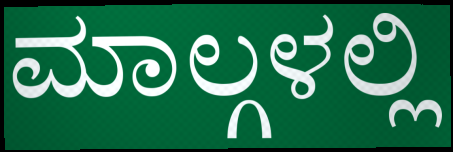
ಮಾಲ್ಗಳಲ್ಲಿ